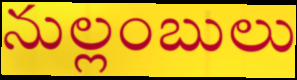
నుల్లంబులు